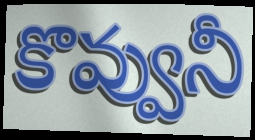
కొవ్వునీ